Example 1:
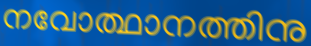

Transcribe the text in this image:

നവോത്ഥാനത്തിനു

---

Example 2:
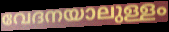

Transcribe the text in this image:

വേദനയാലുള്ളം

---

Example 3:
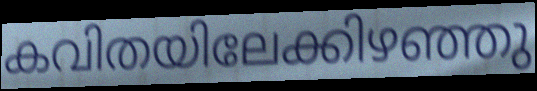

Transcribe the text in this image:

കവിതയിലേക്കിഴഞ്ഞു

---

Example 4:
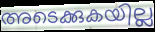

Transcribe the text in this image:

അടെക്കുകയില്ല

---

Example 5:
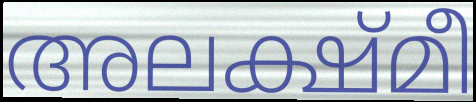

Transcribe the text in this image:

അലക്ഷ്മീ